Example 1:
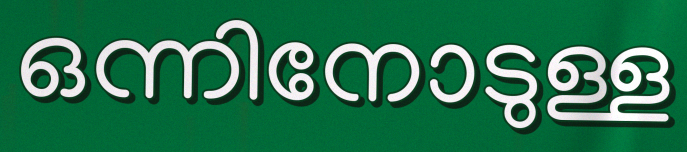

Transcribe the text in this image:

ഒന്നിനോടുള്ള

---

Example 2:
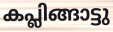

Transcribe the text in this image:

കപ്ലിങ്ങാട്ടു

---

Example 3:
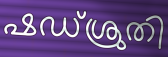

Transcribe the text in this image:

ഷഡ്ശ്രുതി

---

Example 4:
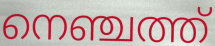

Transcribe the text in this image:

നെഞ്ചത്ത്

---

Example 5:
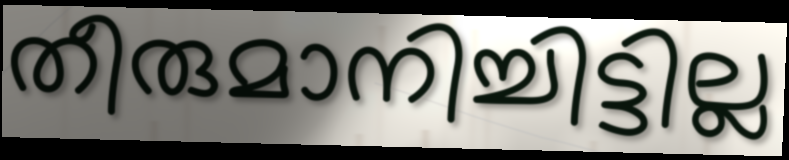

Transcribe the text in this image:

തീരുമാനിച്ചിട്ടില്ല